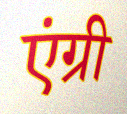
एंग्री